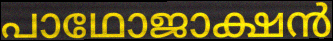
പാഥോജാക്ഷൻ